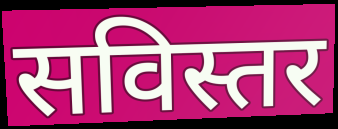
सविस्तर